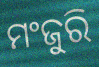
ମଂଜୁରି